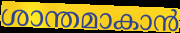
ശാന്തമാകാൻ